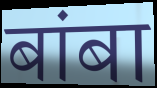
बांबा